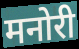
मनोरी